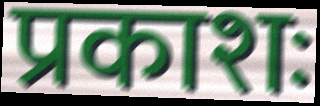
प्रकाशः